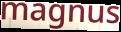
magnus